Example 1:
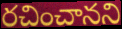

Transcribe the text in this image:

రచించానని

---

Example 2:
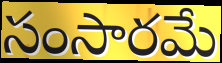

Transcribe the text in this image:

సంసారమే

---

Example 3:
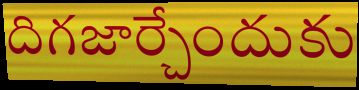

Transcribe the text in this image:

దిగజార్చేందుకు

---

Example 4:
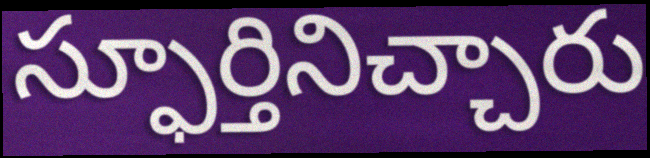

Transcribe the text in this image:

స్ఫూర్తినిచ్చారు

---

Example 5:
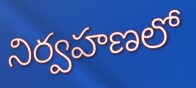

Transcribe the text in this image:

నిర్వహణలో